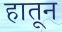
हातून